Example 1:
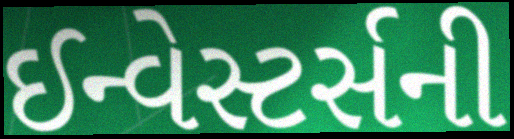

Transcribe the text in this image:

ઈન્વેસ્ટર્સની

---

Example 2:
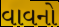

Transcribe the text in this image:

વાવનો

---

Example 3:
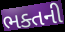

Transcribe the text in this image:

ભક્તની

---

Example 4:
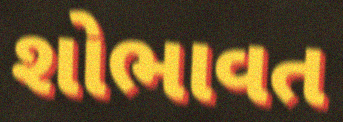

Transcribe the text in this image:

શોભાવત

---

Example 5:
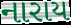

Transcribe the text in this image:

નારાય